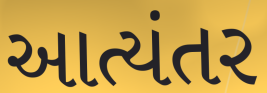
આત્યંતર